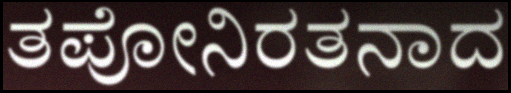
ತಪೋನಿರತನಾದ